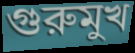
গুরুমুখ